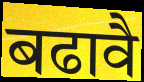
बढावै